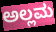
ಅಲ್ಲಮ